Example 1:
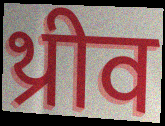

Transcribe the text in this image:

थ्रीव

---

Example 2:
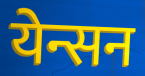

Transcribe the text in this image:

येन्सन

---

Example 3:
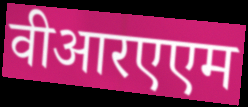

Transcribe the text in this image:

वीआरएएम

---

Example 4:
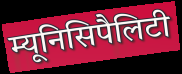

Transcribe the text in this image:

म्यूनिसिपैलिटी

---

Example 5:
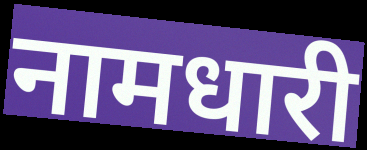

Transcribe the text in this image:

नामधारी